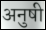
अनुषी